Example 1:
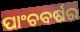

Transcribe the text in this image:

ପାଂଚବର୍ଷର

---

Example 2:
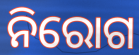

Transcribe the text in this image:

ନିରୋଗ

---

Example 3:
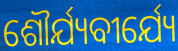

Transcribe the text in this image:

ଶୌର୍ଯ୍ୟବୀର୍ଯ୍ୟେ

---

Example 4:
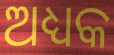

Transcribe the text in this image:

ଅଧ୍ଯକ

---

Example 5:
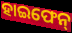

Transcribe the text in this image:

ହାଇଫେନ୍